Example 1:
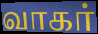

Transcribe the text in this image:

வாகர்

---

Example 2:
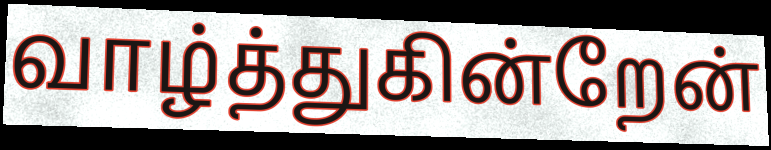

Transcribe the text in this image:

வாழ்த்துகின்றேன்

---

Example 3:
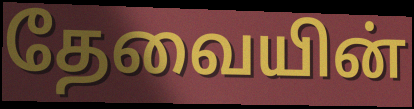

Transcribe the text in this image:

தேவையின்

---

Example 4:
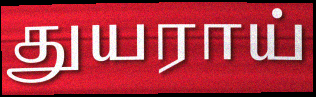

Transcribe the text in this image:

துயராய்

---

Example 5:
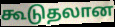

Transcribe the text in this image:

கூடுதலான